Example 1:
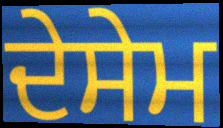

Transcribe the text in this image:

ਦੇਸੇਮ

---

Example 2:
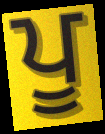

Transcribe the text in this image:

ਪੂ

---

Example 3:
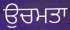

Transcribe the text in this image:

ਉਚਮਤਾ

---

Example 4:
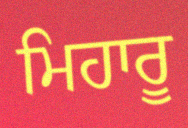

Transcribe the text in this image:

ਮਿਹਾਰੂ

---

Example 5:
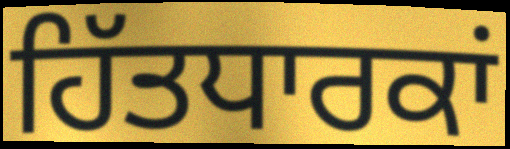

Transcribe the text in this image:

ਹਿੱਤਧਾਰਕਾਂ